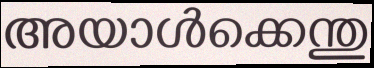
അയാൾക്കെന്തു